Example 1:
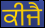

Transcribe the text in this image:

ਕੀਜੈ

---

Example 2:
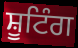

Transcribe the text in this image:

ਸ਼ੂਟਿੰਗ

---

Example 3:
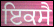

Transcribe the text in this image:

ਇਕਸੈ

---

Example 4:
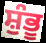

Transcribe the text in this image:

ਸ਼ੁੰਭੂ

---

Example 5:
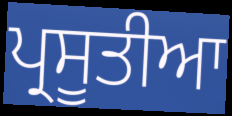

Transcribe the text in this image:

ਪ੍ਰਸੂਤੀਆ